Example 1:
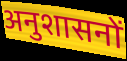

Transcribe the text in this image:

अनुशासनों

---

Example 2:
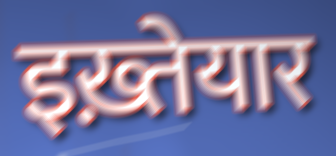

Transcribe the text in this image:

इख़्तेयार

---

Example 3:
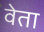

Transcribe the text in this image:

वेता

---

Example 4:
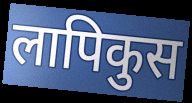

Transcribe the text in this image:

लापिकुस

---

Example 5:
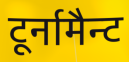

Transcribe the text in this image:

टूर्नामैन्ट